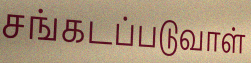
சங்கடப்படுவாள்